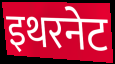
इथरनेट